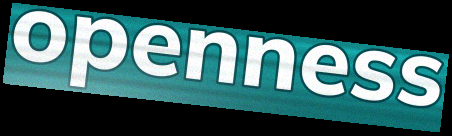
openness